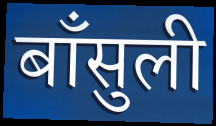
बाँसुली